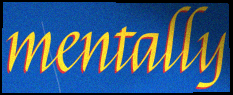
mentally